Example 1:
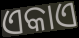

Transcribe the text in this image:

ଏକାଏ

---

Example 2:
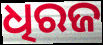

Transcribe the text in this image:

ଧିରଜ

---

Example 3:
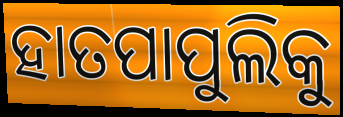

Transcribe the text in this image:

ହାତପାପୁଲିକୁ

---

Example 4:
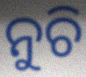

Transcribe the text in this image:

ନୁଚି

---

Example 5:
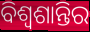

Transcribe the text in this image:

ବିଶ୍ୱଶାନ୍ତିର